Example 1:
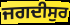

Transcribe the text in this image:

ਜਗਦੀਸੁਰ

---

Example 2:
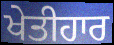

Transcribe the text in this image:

ਖੇਤੀਹਾਰ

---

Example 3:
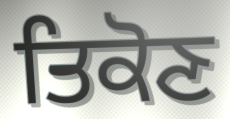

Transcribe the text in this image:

ਤਿਕੋਣ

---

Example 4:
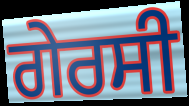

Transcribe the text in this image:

ਗੇਰਸੀ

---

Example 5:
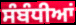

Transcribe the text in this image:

ਸੰਬੰਧੀਆਂ